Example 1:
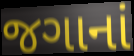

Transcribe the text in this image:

જગાનાં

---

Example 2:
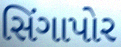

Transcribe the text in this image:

સિંગાપોર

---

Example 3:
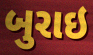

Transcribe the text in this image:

બુરાઇ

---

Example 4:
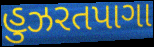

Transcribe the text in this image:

હુઝરતપાગા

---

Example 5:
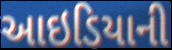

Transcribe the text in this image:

આઇડિયાની